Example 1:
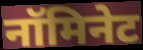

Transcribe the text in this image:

नॉमिनेट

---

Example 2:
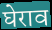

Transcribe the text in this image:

घेराव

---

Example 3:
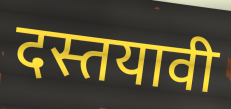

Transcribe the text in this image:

दस्तयावी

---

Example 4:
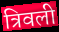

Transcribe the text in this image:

त्रिवली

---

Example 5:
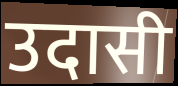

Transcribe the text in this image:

उदासी